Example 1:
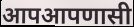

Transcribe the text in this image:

आपआपणासी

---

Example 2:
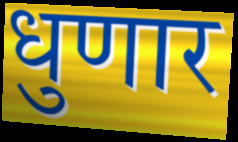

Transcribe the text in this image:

धुणार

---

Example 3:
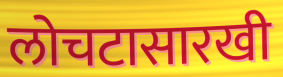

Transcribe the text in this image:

लोचटासारखी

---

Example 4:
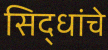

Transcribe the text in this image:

सिद्धांचे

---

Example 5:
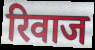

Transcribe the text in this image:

रिवाज